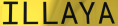
ILLAYA